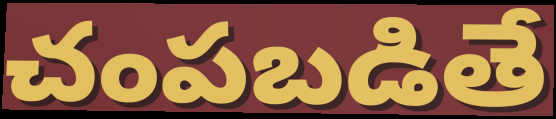
చంపబడితే